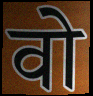
वो